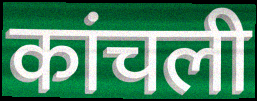
कांचली